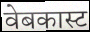
वेबकास्ट